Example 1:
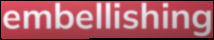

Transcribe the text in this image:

embellishing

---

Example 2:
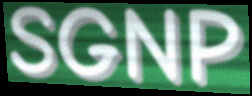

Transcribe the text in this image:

SGNP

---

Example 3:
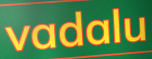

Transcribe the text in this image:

vadalu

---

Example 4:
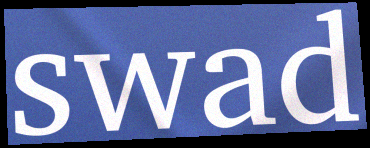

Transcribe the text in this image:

swad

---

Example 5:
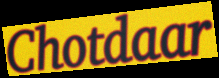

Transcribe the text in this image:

Chotdaar